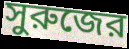
সুরুজের